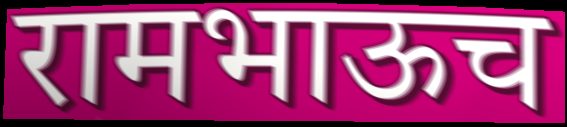
रामभाऊच